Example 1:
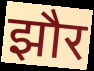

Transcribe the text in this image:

झौर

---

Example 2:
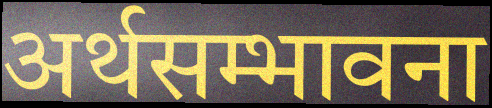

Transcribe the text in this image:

अर्थसम्भावना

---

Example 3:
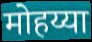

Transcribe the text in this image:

मोहय्या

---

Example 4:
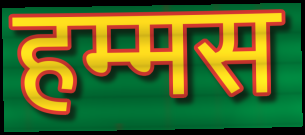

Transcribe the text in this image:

हम्मस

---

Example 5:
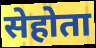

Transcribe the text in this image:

सेहोता